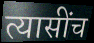
त्यासींच